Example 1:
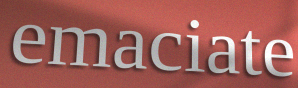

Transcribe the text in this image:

emaciate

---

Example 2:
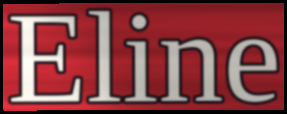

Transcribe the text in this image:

Eline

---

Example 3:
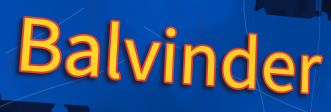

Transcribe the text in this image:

Balvinder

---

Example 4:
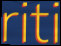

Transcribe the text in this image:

riti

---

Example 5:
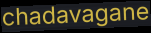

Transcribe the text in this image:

chadavagane